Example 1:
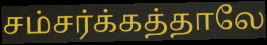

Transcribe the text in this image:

சம்சர்க்கத்தாலே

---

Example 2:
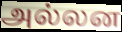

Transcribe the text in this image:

அல்லன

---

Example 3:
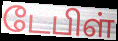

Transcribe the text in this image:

டேபிள்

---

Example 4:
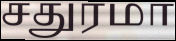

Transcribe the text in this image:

சதுரமா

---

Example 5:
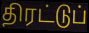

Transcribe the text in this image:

திரட்டுப்